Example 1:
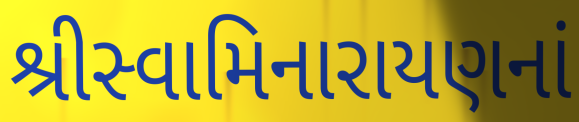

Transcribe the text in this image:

શ્રીસ્વામિનારાયણનાં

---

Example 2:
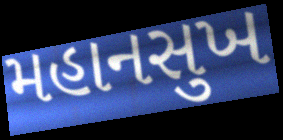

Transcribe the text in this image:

મહાનસુખ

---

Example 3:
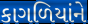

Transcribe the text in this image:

કાગળિયાંને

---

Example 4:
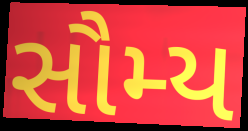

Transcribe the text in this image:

સૌમ્ય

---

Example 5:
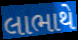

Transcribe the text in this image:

લાભાથે